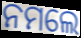
ନମଲେ